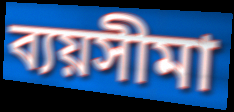
ব্যয়সীমা